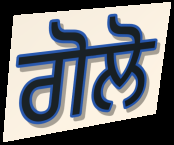
ਗੋਲੋ